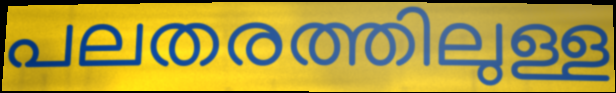
പലതരത്തിലുള്ള